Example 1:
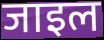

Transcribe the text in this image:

जाइल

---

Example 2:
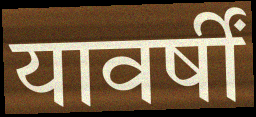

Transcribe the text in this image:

यावर्षीं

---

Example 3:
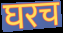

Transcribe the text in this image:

घरच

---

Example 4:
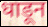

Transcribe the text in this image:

धाडून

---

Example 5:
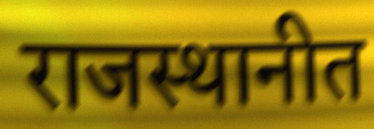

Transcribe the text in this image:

राजस्थानीत